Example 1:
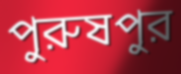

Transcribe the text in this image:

পুরুষপুর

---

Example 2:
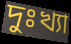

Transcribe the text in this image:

দুঃখ্যা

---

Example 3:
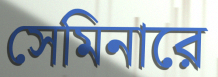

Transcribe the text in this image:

সেমিনারে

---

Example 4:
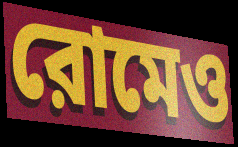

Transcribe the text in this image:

রোমেও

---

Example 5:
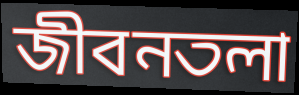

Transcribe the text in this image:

জীবনতলা